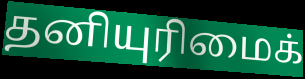
தனியுரிமைக்